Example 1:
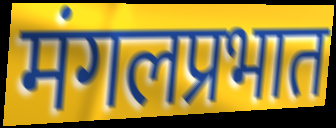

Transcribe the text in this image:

मंगलप्रभात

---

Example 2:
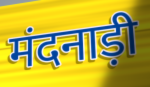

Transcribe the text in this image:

मंदनाड़ी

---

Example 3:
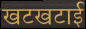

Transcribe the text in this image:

खटखटाई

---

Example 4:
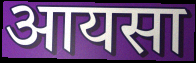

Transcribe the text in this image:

आयसा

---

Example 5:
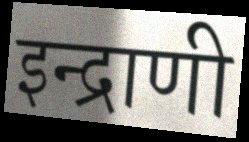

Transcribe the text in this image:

इन्द्राणी